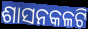
ଶାସନକଳଟି